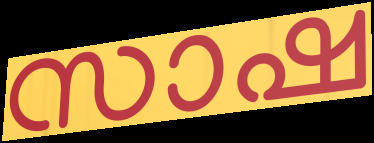
സാഷ